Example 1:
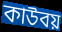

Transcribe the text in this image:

কাউবয়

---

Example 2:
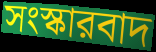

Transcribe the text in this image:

সংস্কারবাদ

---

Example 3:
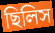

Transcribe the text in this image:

ছিলিস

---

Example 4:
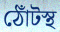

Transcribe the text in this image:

ঠোঁটস্থ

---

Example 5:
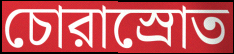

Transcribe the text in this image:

চোরাস্রোত